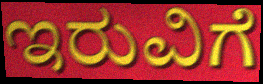
ಇರುವಿಗೆ